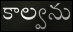
కాల్వను